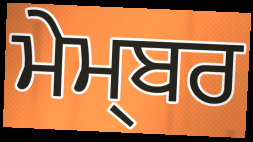
ਮੇਮ੍ਬਰ